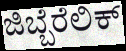
ಜಿಬ್ಬೆರೆಲಿಕ್